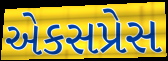
એકસપ્રેસ